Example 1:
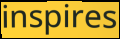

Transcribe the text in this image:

inspires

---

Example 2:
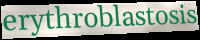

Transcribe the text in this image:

erythroblastosis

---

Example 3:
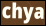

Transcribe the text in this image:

chya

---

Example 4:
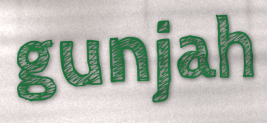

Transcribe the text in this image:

gunjah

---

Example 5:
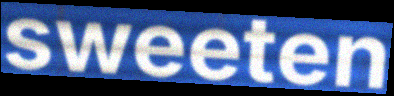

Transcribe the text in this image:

sweeten